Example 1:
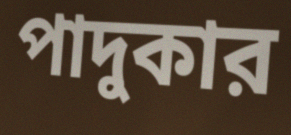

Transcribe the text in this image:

পাদুকার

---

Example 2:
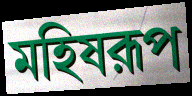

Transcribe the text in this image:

মহিষরূপ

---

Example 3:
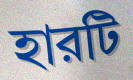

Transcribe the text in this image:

হারটি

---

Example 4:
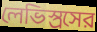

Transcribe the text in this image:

লেভিস্ত্রসের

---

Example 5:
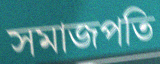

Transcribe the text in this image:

সমাজপতি